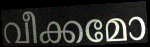
വീക്കമോ